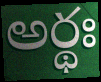
అర్థః